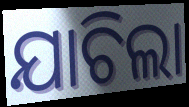
ଯାଚିଲା